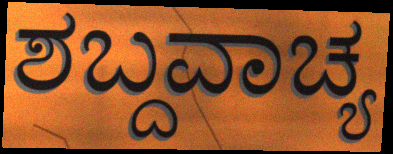
ಶಬ್ದವಾಚ್ಯ